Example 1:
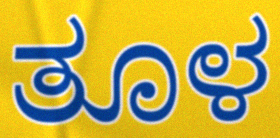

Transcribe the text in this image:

ತೂಳ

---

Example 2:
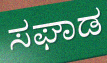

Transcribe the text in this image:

ಸಘಾಡ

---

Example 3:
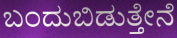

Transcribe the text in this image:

ಬಂದುಬಿಡುತ್ತೇನೆ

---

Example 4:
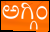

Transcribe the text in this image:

ಅಗ್ಗಿಂ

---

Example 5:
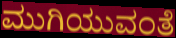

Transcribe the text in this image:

ಮುಗಿಯುವಂತೆ